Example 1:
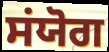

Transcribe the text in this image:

ਸਂਯੋਗ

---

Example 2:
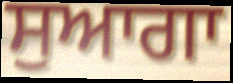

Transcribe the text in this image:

ਸੁਆਗਾ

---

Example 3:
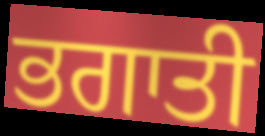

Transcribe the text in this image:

ਭਗਾਤੀ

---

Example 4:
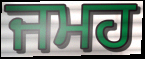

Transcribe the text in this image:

ਜਮਹ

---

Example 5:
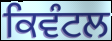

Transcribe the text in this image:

ਕਿਵੰਟਲ